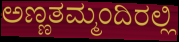
ಅಣ್ಣತಮ್ಮಂದಿರಲ್ಲಿ